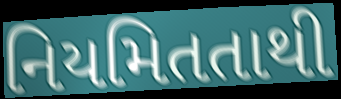
નિયમિતતાથી